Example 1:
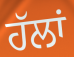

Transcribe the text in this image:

ਹੱਲਾਂ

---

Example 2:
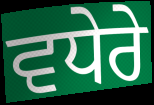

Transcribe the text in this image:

ਵਧੇਰੇ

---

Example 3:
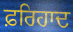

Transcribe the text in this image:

ਫ਼ਰਿਹਾਦ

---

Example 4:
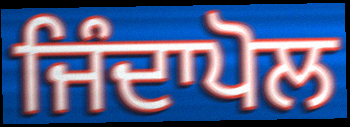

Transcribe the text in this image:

ਜਿੰਦਾਪੋਲ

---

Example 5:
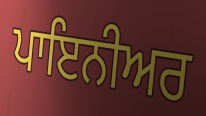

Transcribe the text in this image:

ਪਾਇਨੀਅਰ